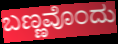
ಬಣ್ಣವೊಂದು